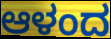
ಆಳಂದ